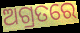
ଅଗ୍ରତରେ